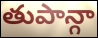
తుపాన్గా